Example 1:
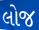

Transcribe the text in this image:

લોજ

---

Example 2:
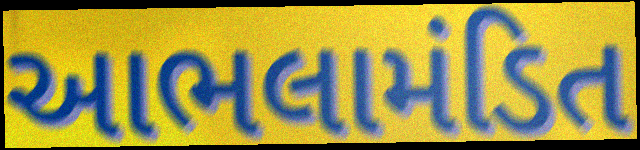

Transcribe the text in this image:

આભલામંડિત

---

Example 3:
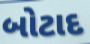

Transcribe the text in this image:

બોટાદ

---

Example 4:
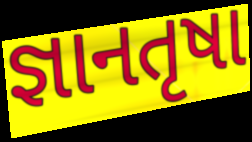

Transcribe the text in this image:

જ્ઞાનતૃષા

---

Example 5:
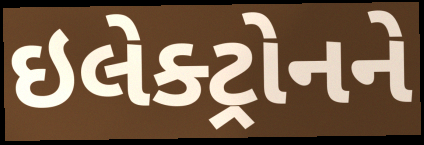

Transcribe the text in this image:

ઇલેક્ટ્રોનને